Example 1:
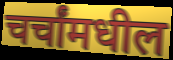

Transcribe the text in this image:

चर्चांमधील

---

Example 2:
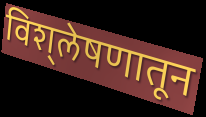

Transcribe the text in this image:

विश्लेषणातून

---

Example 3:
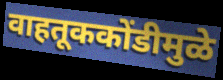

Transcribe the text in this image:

वाहतूककोंडीमुळे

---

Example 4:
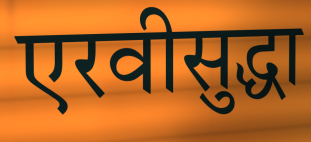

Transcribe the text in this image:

एरवीसुद्धा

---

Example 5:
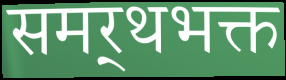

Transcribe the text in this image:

समर्थभक्त